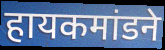
हायकमांडने